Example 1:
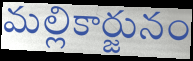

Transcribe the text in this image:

మల్లికార్జునం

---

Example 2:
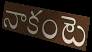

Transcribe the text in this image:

నాకంటె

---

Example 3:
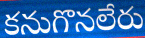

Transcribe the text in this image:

కనుగొనలేరు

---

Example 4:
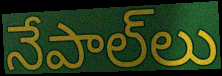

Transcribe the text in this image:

నేపాల్‌లు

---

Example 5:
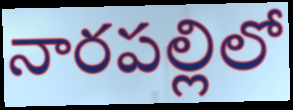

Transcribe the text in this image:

నారపల్లిలో